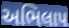
અભિલાપ